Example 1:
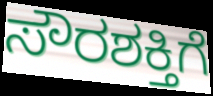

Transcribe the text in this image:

ಸೌರಶಕ್ತಿಗೆ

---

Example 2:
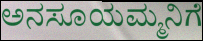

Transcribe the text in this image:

ಅನಸೂಯಮ್ಮನಿಗೆ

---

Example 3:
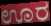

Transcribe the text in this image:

ಊರ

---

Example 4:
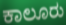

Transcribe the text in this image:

ಕಾಲೂರು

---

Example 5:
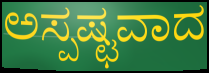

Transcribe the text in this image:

ಅಸ್ಪಷ್ಟವಾದ